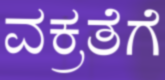
ವಕ್ರತೆಗೆ